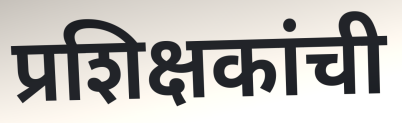
प्रशिक्षकांची